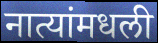
नात्यांमधली